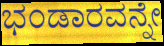
ಭಂಡಾರವನ್ನೇ